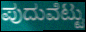
ಪುದುವೆಟ್ಟು